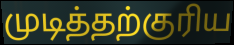
முடித்தற்குரிய